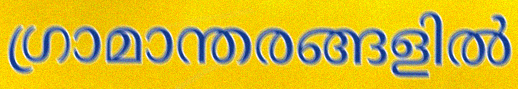
ഗ്രാമാന്തരങ്ങളിൽ